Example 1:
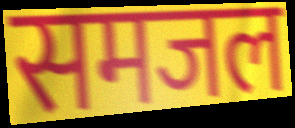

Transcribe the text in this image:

समजल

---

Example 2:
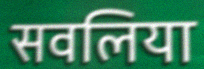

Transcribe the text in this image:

सवलिया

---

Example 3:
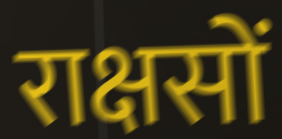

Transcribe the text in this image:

राक्षसों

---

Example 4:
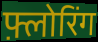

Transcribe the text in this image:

फ़्लोरिंग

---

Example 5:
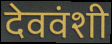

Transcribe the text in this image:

देववंशी